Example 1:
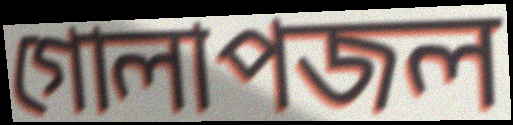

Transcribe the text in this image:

গোলাপজল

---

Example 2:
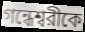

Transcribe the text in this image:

গন্ধেশ্বরীকে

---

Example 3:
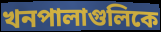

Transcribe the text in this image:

খনপালাগুলিকে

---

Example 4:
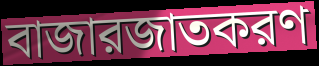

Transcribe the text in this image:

বাজারজাতকরণ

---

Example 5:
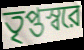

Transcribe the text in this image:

তৃপ্তস্বরে